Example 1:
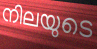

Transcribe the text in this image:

നിലയുടെ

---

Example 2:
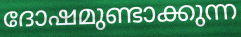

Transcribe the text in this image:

ദോഷമുണ്ടാക്കുന്ന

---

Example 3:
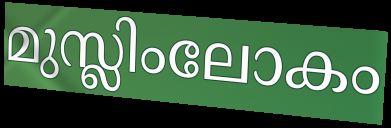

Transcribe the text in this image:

മുസ്ലിംലോകം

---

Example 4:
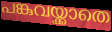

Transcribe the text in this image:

പങ്കുവയ്ക്കാതെ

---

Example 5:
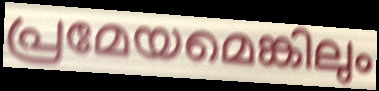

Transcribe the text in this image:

പ്രമേയമെങ്കിലും